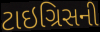
ટાઇગ્રિસની